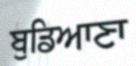
ਬੁਡਿਆਣਾ